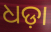
ଧଡ଼ା